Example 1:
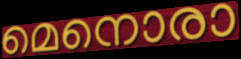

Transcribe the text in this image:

മെനൊരാ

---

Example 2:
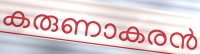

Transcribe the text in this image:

കരുണാകരൻ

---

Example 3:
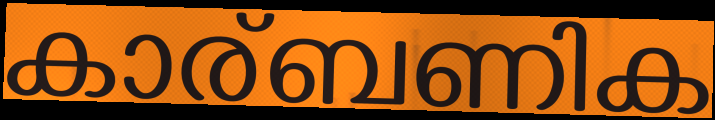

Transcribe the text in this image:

കാര്ബണിക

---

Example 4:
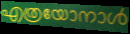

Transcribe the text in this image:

എത്രയോനാൾ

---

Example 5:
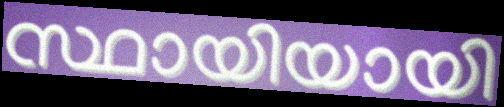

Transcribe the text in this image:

സ്ഥായിയായി